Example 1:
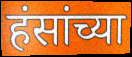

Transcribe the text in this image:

हंसांच्या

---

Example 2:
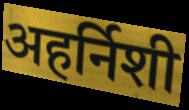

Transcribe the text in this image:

अहर्निशी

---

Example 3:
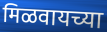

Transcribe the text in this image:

मिळवायच्या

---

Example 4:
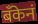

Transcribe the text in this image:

बॅंकेनं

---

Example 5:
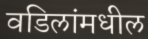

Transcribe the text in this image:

वडिलांमधील